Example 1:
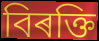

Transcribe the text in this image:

বিৰক্তি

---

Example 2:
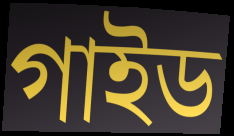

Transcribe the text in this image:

গাইড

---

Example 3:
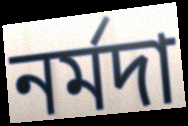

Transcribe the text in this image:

নৰ্মদা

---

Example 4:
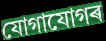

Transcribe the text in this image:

যোগাযোগৰ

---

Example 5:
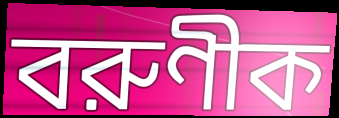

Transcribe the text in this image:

বৰুণীক